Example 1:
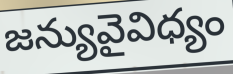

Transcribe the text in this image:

జన్యువైవిధ్యం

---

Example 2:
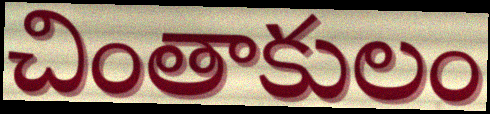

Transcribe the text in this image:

చింతాకులం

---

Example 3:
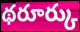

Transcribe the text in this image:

థరూర్కు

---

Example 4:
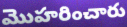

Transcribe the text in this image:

మొహరించారు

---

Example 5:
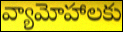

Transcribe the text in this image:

వ్యామోహాలకు